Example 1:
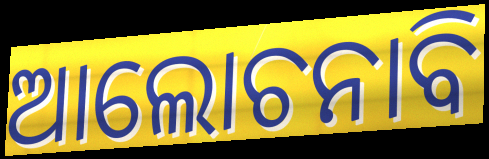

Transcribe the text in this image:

ଆଲୋଚନାବି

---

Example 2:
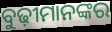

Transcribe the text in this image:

ବୁଢ଼ୀମାନଙ୍କର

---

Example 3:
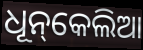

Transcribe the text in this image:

ଧୂନ୍‌କେଲିଆ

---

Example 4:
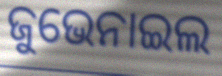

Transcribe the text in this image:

ଜୁଭେନାଇଲ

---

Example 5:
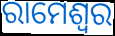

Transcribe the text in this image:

ରାମେଶ୍ୱର